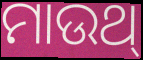
ମାଉଥ୍